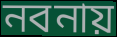
নবনায়